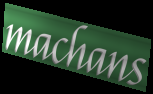
machans